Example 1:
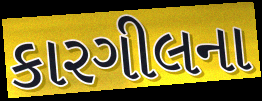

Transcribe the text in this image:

કારગીલના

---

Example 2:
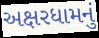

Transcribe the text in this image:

અક્ષરધામનું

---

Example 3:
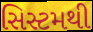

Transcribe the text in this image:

સિસ્ટમથી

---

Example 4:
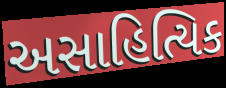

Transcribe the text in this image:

અસાહિત્યિક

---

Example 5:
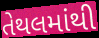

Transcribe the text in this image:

તેથલમાંથી